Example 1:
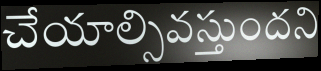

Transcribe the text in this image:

చేయాల్సివస్తుందని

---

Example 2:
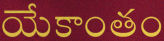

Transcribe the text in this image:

యేకాంతం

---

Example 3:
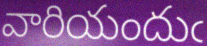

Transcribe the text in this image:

వారియందుఁ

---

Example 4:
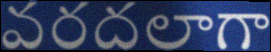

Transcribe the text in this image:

వరదలాగా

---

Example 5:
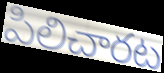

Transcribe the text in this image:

పిలిచారట